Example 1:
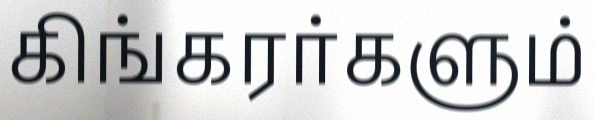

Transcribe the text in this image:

கிங்கரர்களும்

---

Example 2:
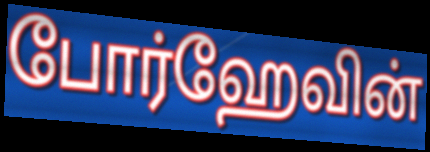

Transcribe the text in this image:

போர்ஹேவின்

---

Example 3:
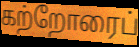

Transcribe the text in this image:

கற்றோரைப்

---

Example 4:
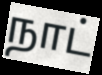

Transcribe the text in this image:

நாட்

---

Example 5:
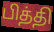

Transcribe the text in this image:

பித்தி